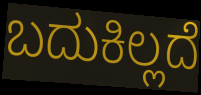
ಬದುಕಿಲ್ಲದೆ